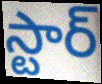
స్టార్